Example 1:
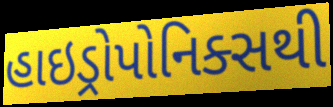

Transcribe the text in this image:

હાઇડ્રોપોનિક્સથી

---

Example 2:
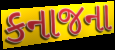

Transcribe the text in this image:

કનાજના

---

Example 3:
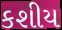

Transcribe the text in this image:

કશીય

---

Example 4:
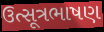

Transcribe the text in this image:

ઉત્સૂત્રભાષણ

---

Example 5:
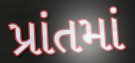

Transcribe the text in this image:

પ્રાંતમાં